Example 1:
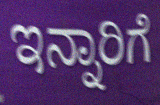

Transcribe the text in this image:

ಇನ್ನಾರಿಗೆ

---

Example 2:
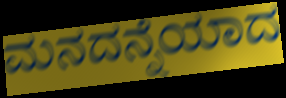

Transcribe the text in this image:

ಮನದನ್ನೆಯಾದ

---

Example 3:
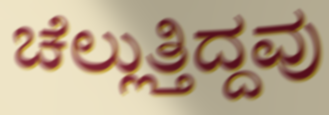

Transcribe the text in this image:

ಚೆಲ್ಲುತ್ತಿದ್ದವು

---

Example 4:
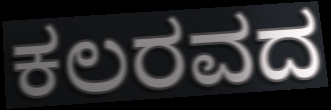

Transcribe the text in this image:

ಕಲರವದ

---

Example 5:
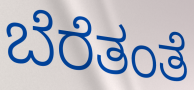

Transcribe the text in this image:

ಬೆರೆತಂತೆ